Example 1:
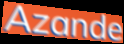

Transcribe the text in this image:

Azande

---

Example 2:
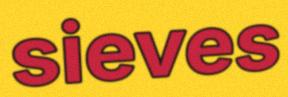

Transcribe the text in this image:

sieves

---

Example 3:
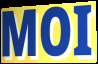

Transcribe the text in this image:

MOI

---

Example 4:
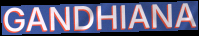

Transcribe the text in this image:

GANDHIANA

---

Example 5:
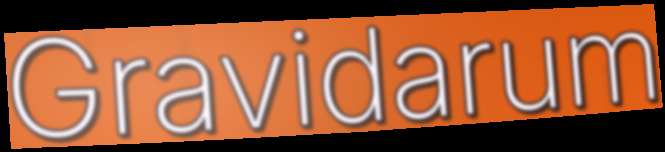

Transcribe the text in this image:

Gravidarum